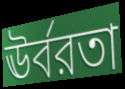
ঊর্বরতা